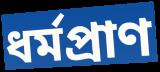
ধর্মপ্রাণ